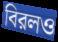
বিরলও